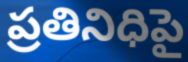
ప్రతినిధిపై